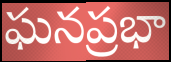
ఘనప్రభా